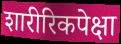
शारीरिकपेक्षा